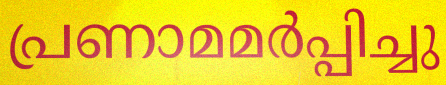
പ്രണാമമർപ്പിച്ചു